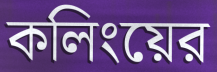
কলিংয়ের